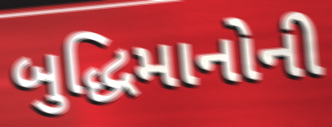
બુદ્ધિમાનોની